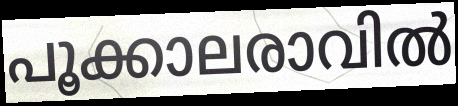
പൂക്കാലരാവിൽ